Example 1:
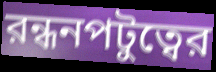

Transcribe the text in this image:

রন্ধনপটুত্বের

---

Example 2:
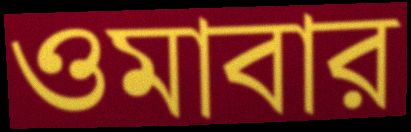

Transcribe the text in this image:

ওমাবার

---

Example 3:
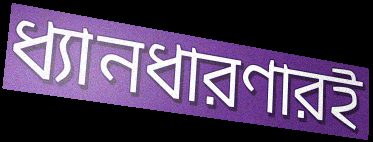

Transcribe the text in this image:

ধ্যানধারণারই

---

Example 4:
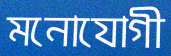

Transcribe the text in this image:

মনোযোগী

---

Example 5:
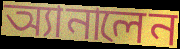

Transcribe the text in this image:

অ্যানালেন